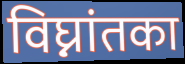
विघ्नांतका